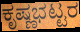
ಕೃಷ್ಣಭಟ್ಟರ